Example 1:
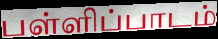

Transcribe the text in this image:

பள்ளிப்பாடம்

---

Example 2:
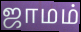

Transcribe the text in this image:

ஜாமம்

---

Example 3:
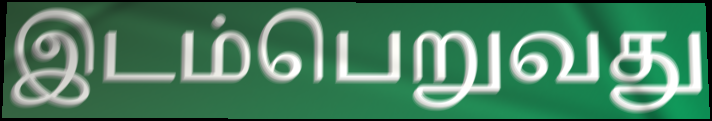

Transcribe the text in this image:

இடம்பெறுவது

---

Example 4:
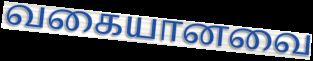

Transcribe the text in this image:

வகையானவை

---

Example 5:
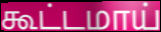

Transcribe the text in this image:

கூட்டமாய்